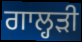
ਗਾਲ੍ਹੜੀ